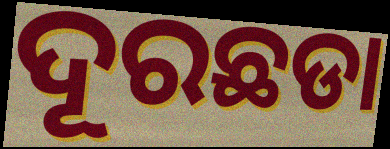
ଦୂରଛଡା